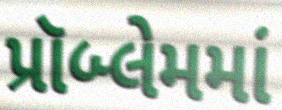
પ્રૉબ્લેમમાં